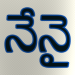
నేనై